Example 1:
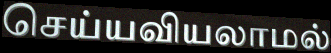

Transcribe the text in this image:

செய்யவியலாமல்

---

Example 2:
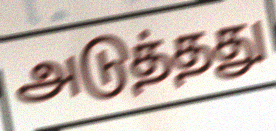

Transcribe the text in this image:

அடுத்தது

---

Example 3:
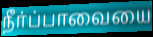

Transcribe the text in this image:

நீர்ப்பாவையை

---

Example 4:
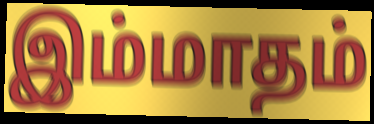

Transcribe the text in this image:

இம்மாதம்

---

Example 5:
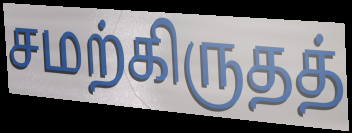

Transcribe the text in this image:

சமற்கிருதத்